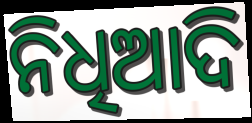
ନିଧିଆଦି